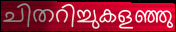
ചിതറിച്ചുകളഞ്ഞു